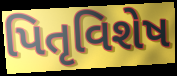
પિતૃવિશેષ